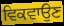
ਵਿਕਵਾਉਣ